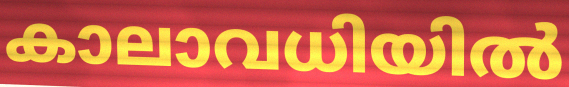
കാലാവധിയിൽ